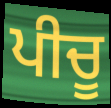
ਪੀਚੂ